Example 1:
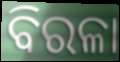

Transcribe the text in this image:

ବିରଳା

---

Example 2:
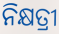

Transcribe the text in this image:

ନିକ୍ଷତ୍ରୀ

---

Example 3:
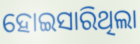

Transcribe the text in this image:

ହୋଇସାରିଥିଲା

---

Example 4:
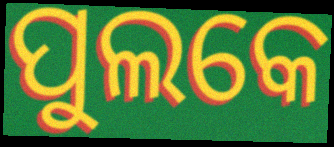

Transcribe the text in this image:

ପୁଲକେ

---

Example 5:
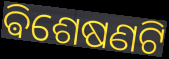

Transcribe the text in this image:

ଵିଶେଷଣଟି